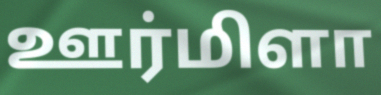
ஊர்மிளா